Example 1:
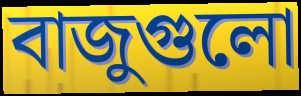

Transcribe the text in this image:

বাজুগুলো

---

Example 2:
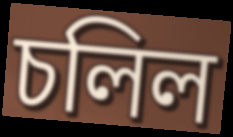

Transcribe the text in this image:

চলিল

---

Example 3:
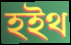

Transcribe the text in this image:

হইথ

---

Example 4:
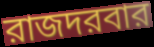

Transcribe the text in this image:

রাজদরবার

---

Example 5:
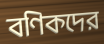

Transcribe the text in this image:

বণিকদের